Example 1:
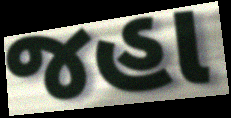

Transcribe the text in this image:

જહા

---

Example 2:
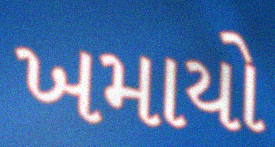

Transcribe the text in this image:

ખમાયો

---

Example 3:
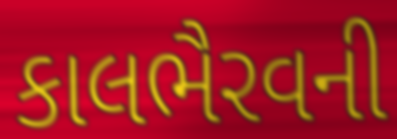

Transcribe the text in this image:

કાલભૈરવની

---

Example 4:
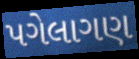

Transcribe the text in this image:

પગેલાગણ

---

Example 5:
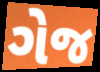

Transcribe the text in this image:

ગેજ